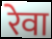
रेवा